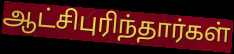
ஆட்சிபுரிந்தார்கள்